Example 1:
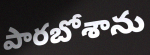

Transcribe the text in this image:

పారబోశాను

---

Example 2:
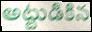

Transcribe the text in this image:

అట్టుడికిన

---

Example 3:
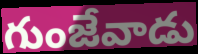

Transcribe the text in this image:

గుంజేవాడు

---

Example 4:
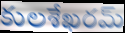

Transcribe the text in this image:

కులశేఖరమ్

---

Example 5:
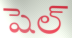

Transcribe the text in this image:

షెల్